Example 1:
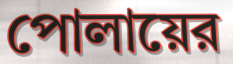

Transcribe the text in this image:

পোলায়ের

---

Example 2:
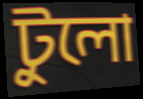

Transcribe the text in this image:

টুলো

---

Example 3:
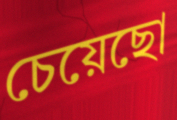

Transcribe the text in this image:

চেয়েছো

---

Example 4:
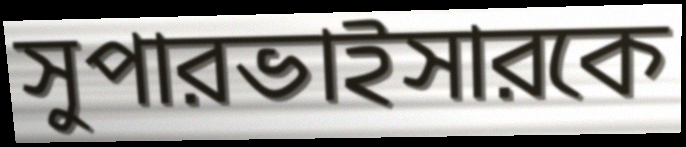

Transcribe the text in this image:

সুপারভাইসারকে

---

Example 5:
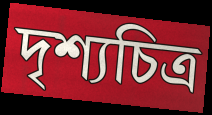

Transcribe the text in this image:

দৃশ্যচিত্র